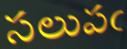
సలుపఁ